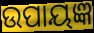
ଉପାୟଜ୍ଞ